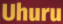
Uhuru